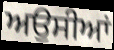
ਅਉਸੀਆਂ